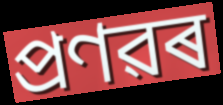
প্ৰণৱৰ